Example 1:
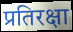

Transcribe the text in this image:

प्रतिरक्षा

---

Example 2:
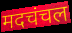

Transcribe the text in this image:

मदचंचल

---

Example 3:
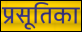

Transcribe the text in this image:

प्रसूतिका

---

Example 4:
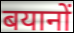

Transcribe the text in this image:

बयानों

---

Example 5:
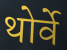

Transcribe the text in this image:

थोर्वे